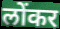
लोंकर